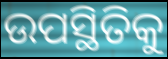
ଉପସ୍ଥିତିକୁ